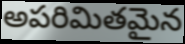
అపరిమితమైన